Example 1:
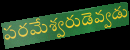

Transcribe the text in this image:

పరమేశ్వరుడెవ్వడు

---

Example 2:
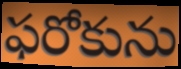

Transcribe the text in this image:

ఫరోకును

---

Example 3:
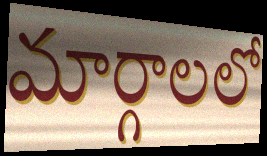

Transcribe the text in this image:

మార్గాలలో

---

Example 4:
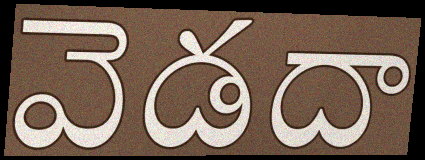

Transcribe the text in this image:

వెడదా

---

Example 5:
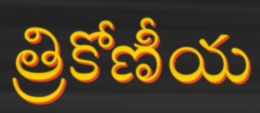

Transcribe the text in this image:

త్రికోణీయ